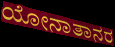
ಯೋನಾತಾನರ